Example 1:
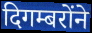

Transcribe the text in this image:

दिगम्बरोंने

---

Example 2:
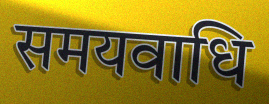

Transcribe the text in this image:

समयवाधि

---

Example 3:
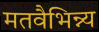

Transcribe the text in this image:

मतवैभिन्न्य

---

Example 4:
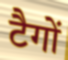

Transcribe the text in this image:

टैगों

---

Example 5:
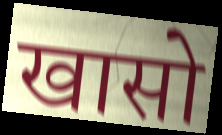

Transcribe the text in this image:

खासो